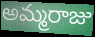
అమ్మరాజు